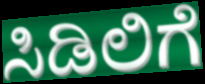
ಸಿಡಿಲಿಗೆ